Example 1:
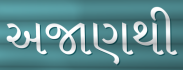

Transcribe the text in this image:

અજાણથી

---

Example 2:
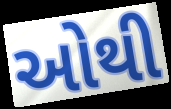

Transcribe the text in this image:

ઓથી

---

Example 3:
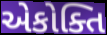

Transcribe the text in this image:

એકોક્તિ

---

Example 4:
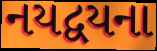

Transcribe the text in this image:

નયદ્વયના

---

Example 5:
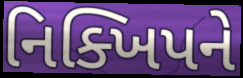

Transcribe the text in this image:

નિક્ખિપને